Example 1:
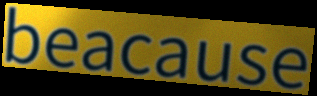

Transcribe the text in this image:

beacause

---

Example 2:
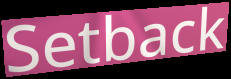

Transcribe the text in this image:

Setback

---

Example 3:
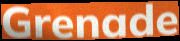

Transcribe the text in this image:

Grenade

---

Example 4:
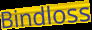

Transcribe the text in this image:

Bindloss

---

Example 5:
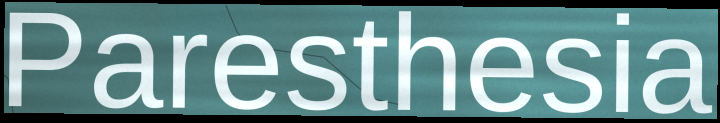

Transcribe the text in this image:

Paresthesia